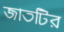
জাতটির